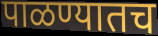
पाळण्यातच